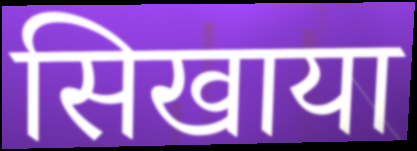
सिखाया